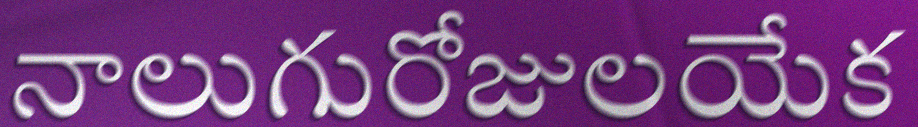
నాలుగురోజులయేక